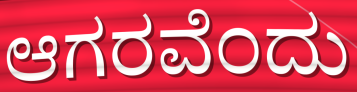
ಆಗರವೆಂದು